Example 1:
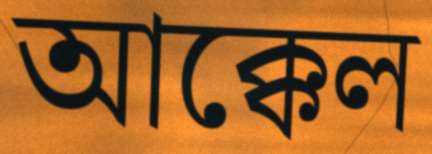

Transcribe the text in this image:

আক্কেল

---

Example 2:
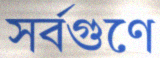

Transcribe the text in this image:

সর্বগুণে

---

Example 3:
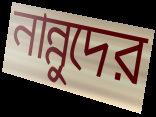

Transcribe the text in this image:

নান্নুদের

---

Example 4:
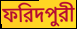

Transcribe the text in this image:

ফরিদপুরী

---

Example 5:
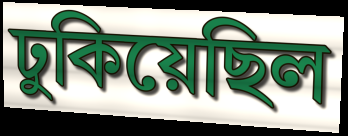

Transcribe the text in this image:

ঢুকিয়েছিল